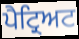
ਪੈਟ੍ਰਿਅਟ